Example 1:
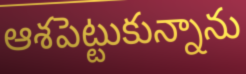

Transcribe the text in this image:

ఆశపెట్టుకున్నాను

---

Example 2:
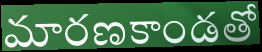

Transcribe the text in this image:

మారణకాండతో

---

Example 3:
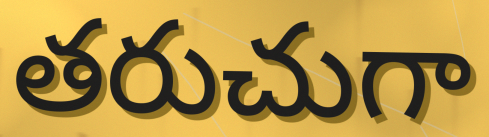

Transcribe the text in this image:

తరుచుగా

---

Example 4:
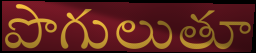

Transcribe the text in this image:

పొగులుతూ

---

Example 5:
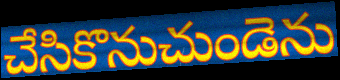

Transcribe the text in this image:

చేసికొనుచుండెను